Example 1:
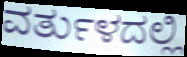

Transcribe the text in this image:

ವರ್ತುಳದಲ್ಲಿ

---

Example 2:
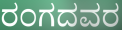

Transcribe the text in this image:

ರಂಗದವರ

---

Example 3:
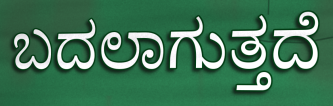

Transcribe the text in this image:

ಬದಲಾಗುತ್ತದೆ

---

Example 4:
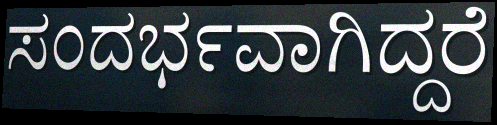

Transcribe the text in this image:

ಸಂದರ್ಭವಾಗಿದ್ದರೆ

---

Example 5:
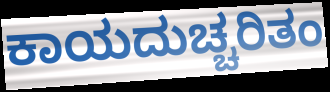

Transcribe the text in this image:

ಕಾಯದುಚ್ಚರಿತಂ